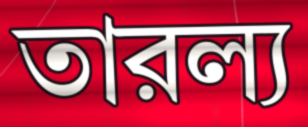
তারল্য